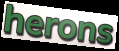
herons